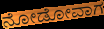
ನೋಡೋವಾಗ